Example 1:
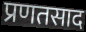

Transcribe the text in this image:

प्रणतसाद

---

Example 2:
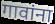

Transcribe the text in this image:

गावांना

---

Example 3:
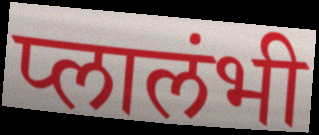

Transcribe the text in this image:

प्लालंभी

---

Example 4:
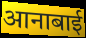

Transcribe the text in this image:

आनाबाई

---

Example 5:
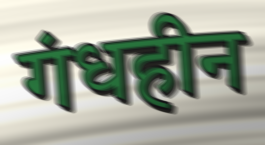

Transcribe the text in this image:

गंधहीन